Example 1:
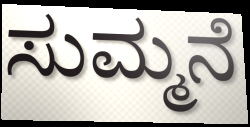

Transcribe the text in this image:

ಸುಮ್ಮನೆ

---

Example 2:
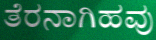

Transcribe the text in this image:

ತೆರನಾಗಿಹವು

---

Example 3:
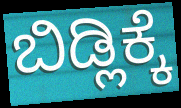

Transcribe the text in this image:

ಬಿಡ್ಲಿಕ್ಕೆ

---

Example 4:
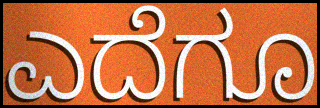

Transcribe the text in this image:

ಎದೆಗೂ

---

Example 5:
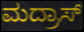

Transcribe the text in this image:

ಮದ್ರಾಸ್